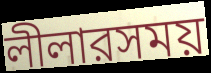
লীলারসময়